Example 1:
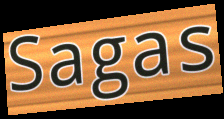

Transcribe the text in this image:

Sagas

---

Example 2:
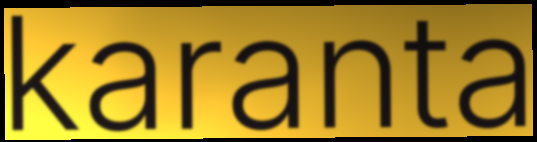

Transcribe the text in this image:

karanta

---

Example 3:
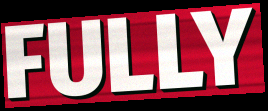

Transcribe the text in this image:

FULLY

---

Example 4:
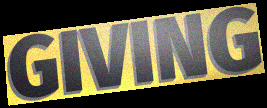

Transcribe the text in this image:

GIVING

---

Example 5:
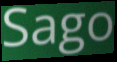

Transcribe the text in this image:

Sago